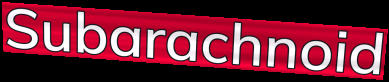
Subarachnoid